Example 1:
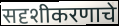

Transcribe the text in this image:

सदृशीकरणाचे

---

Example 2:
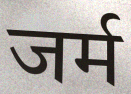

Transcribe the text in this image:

जर्म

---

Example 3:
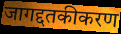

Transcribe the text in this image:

जागद्दतकीकरण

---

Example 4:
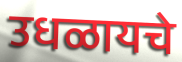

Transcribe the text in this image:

उधळायचे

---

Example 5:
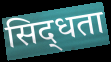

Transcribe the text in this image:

सिद्‌धता